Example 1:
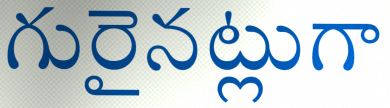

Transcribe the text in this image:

గురైనట్లుగా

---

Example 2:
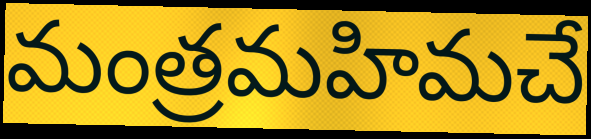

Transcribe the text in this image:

మంత్రమహిమచే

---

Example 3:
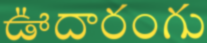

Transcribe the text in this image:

ఊదారంగు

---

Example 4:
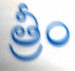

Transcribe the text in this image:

త్రీం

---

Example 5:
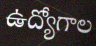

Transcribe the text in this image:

ఉద్యోగాల